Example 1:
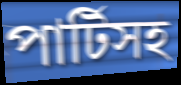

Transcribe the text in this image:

পার্টিসহ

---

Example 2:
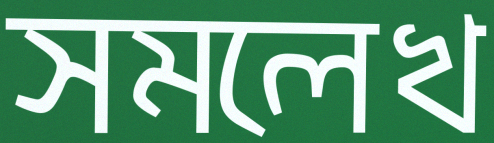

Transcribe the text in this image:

সমলেখ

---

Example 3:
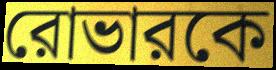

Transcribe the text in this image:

রোভারকে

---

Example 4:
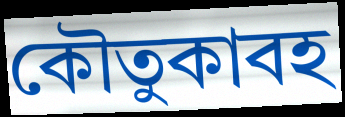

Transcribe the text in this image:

কৌতুকাবহ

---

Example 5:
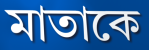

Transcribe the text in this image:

মাতাকে